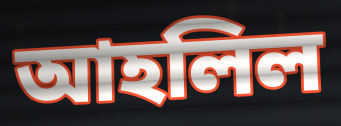
আহলিল